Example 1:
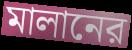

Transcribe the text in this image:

মালানের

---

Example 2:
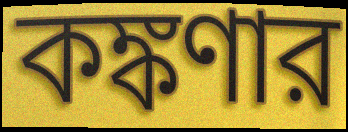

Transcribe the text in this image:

কঙ্কণার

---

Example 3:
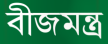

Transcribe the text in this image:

বীজমন্ত্র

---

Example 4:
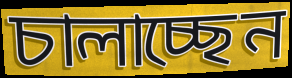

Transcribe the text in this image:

চালাচ্ছেন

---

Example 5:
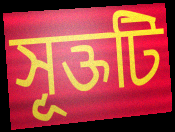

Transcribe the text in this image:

সূক্তটি